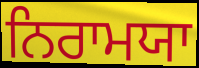
ਨਿਰਾਮਯਾ